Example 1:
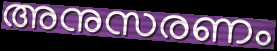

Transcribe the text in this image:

അനുസരണം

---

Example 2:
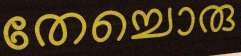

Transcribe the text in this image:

തേച്ചൊരു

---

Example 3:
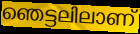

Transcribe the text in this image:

ഞെട്ടലിലാണ്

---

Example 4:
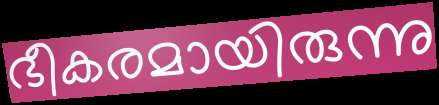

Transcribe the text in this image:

ഭീകരമായിരുന്നു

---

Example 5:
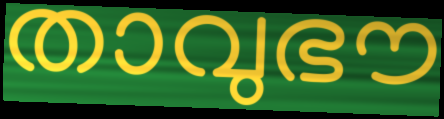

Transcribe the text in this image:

താവുഭൗ